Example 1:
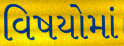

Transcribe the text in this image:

વિષયોમાં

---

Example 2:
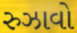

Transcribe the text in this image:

રુઝાવો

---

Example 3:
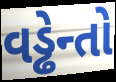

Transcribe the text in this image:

વડ્ઢેન્તો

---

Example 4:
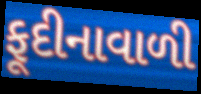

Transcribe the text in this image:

ફૂદીનાવાળી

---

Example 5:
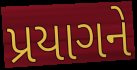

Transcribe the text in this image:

પ્રયાગને